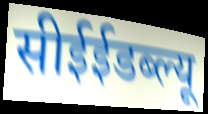
सीईईडब्ल्यू